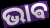
ଭାଵ